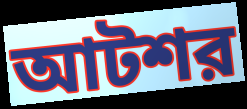
আটশর